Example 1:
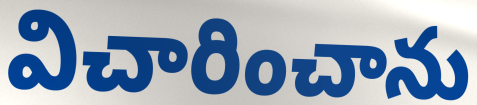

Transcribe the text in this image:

విచారించాను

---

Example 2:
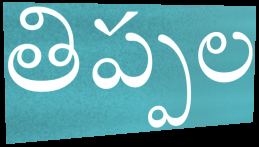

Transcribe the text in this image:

తిప్పల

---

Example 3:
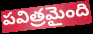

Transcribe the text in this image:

పవిత్రమైంది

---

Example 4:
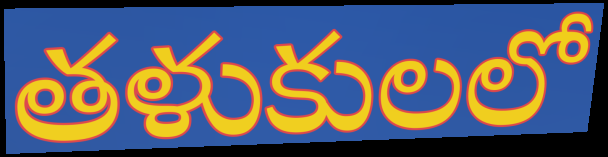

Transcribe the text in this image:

తళుకులలో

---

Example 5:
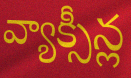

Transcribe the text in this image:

వ్యాక్సీన్ల